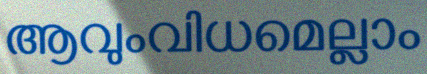
ആവുംവിധമെല്ലാം